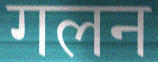
गलन